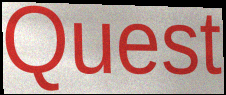
Quest